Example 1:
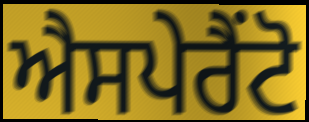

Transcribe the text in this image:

ਐਸਪੇਰੈਂਟੋ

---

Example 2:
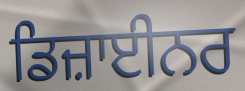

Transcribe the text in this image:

ਡਿਜ਼ਾਈਨਰ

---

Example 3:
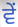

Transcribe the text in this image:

ਵੇਂ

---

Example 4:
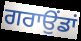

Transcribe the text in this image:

ਗਰਾਉਂਡਾਂ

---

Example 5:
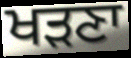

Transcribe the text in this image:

ਖੜਣਾ